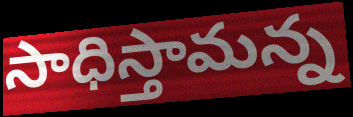
సాధిస్తామన్న